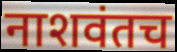
नाशवंतच